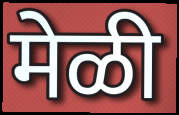
मेळी